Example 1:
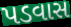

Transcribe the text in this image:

પડવાસ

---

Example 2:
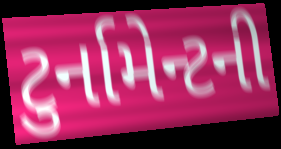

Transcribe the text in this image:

ટુર્નામેન્ટની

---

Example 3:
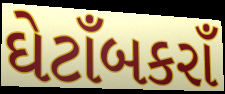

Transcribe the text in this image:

ઘેટાઁબકરાઁ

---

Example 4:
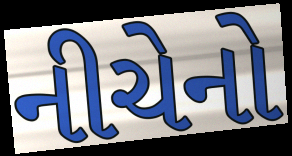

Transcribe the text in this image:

નીચેનો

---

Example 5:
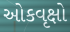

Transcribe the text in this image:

ઓકવૃક્ષો